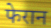
फेरान